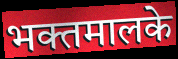
भक्तमालके